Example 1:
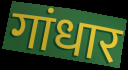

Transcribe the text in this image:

गांधार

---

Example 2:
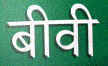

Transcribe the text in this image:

बीवी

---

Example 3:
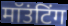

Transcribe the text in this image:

मॉउंटिंग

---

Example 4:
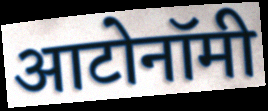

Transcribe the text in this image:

आटोनॉमी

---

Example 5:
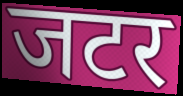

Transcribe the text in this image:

जटर